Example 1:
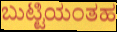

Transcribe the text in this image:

ಬುಟ್ಟಿಯಂತಹ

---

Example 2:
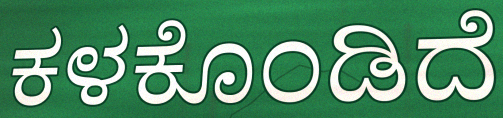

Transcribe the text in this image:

ಕಳಕೊಂಡಿದೆ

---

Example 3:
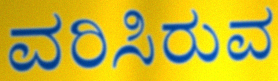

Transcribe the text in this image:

ವರಿಸಿರುವ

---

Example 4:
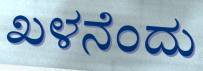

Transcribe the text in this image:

ಖಳನೆಂದು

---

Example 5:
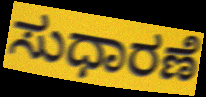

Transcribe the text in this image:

ಸುಧಾರಣೆ